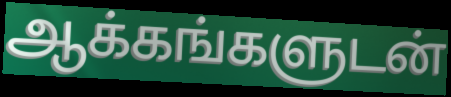
ஆக்கங்களுடன்